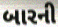
બારની